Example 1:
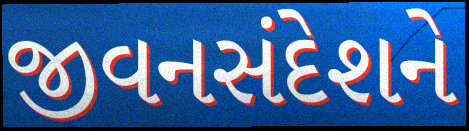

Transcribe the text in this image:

જીવનસંદેશને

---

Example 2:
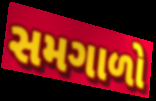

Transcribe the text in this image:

સમગાળો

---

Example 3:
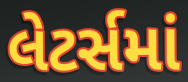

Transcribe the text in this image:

લેટર્સમાં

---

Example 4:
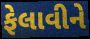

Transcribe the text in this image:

ફેલાવીને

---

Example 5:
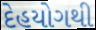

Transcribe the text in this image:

દેહયોગથી